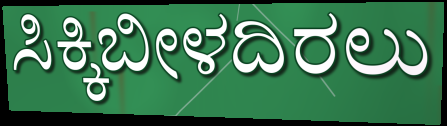
ಸಿಕ್ಕಿಬೀಳದಿರಲು